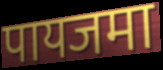
पायजमा